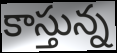
కాస్తున్న